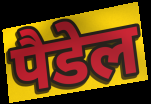
पैडेल